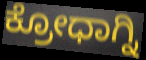
ಕ್ರೋಧಾಗ್ನಿ